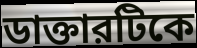
ডাক্তারটিকে